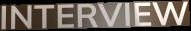
INTERVIEW